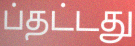
ப்தட்டது